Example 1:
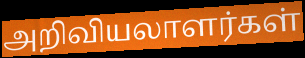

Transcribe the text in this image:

அறிவியலாளர்கள்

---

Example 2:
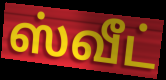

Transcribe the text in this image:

ஸ்வீட்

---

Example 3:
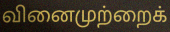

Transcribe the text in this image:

வினைமுற்றைக்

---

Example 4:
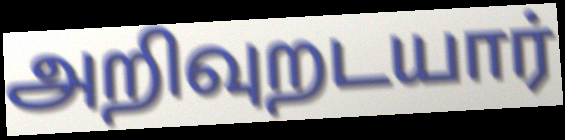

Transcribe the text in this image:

அறிவுறடயார்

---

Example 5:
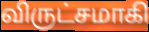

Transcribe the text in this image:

விருட்சமாகி